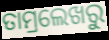
ତାମ୍ରଲେଖରୁ